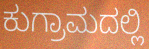
ಕುಗ್ರಾಮದಲ್ಲಿ